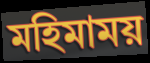
মহিমাময়